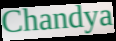
Chandya